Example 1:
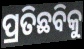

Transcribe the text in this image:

ପ୍ରତିଛବିକୁ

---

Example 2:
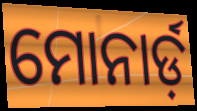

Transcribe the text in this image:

ମୋନାର୍ଡ଼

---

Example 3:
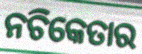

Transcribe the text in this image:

ନଚିକେତାର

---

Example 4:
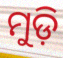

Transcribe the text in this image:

ମୁଡ଼ି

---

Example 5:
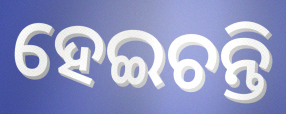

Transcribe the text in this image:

ହେଇଚନ୍ତି